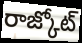
రాజ్కోట్